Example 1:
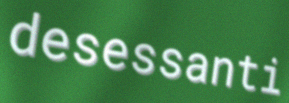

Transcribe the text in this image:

desessanti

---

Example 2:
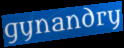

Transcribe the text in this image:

gynandry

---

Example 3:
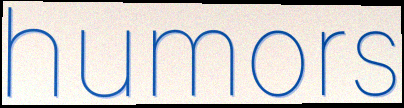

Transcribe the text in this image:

humors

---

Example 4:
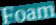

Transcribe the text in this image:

Foam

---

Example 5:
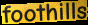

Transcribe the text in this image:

foothills